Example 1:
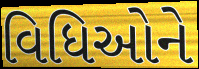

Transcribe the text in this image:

વિધિઓને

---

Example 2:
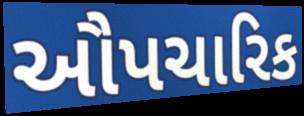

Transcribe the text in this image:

ઔપચારિક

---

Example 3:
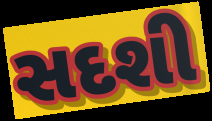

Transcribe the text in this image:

સદશી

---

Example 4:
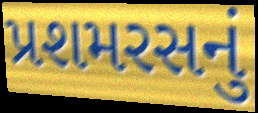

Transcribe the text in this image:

પ્રશમરસનું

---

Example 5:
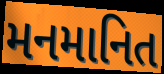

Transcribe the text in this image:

મનમાનિત